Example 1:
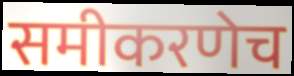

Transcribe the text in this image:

समीकरणेच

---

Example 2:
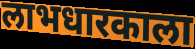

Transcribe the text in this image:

लाभधारकाला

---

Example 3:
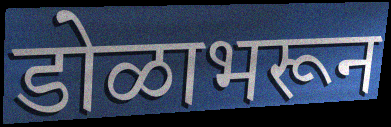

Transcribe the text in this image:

डोळाभरून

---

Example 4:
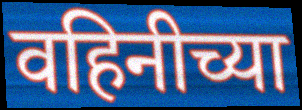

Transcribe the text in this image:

वहिनीच्या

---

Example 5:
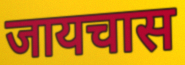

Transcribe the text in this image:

जायचास